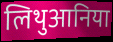
लिथुआनिया